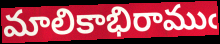
మాలికాభిరాముఁ